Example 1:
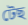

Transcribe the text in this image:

টেছ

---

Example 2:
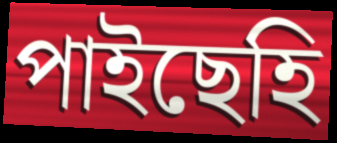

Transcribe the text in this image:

পাইছেহি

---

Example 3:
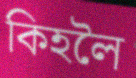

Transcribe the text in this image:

কিহলৈ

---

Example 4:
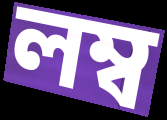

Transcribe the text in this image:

লম্ব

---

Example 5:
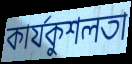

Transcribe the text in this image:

কাৰ্যকুশলতা